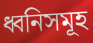
ধ্বনিসমূহ